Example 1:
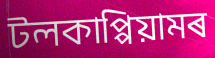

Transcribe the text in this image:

টলকাপ্পিয়ামৰ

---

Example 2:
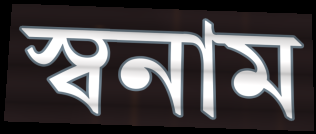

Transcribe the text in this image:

স্বনাম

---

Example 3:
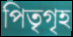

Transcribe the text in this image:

পিতৃগৃহ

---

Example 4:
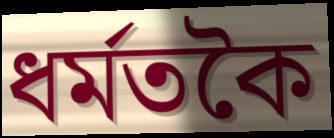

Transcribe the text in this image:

ধৰ্মতকৈ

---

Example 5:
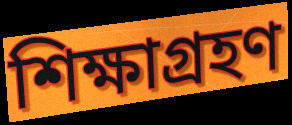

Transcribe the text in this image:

শিক্ষাগ্ৰহণ